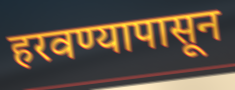
हरवण्यापासून